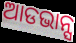
ଆଡଭାନ୍ସ